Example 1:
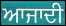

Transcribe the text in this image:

ਆਜਾਦੀ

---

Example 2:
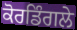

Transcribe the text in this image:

ਕੋਰਡਿੰਗਲੇ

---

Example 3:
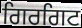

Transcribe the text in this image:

ਗਿਰਗਿਟ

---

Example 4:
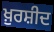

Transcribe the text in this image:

ਖ਼ੁਰਸ਼ੀਦ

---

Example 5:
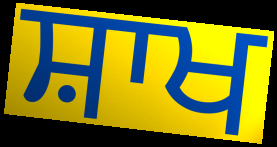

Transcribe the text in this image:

ਸ਼ਾਖ